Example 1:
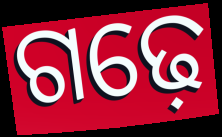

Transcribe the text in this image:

ଗଢ଼େ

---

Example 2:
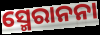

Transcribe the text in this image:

ସ୍ମେରାନନା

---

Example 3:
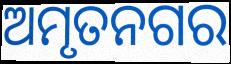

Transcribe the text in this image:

ଅମୃତନଗର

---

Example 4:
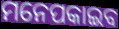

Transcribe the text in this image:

ମନେପକାଇବ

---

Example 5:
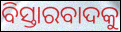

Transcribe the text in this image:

ବିସ୍ତାରବାଦକୁ